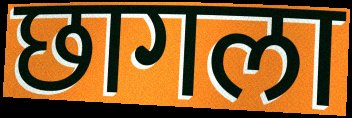
छागला